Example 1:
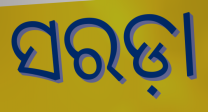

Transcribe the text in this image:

ସରଡ଼ା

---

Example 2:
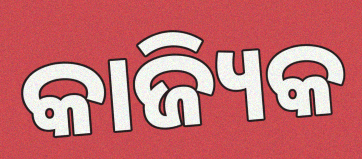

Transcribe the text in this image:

କାଜ୍ୟିକ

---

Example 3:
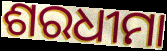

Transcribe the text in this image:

ଶରଧୀମା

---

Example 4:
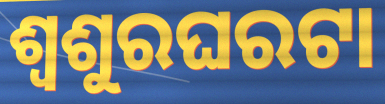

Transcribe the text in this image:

ଶ୍ୱଶୁରଘରଟା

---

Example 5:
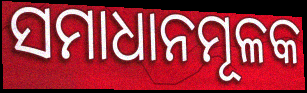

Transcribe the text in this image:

ସମାଧାନମୂଳକ